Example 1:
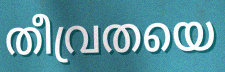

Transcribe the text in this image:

തീവ്രതയെ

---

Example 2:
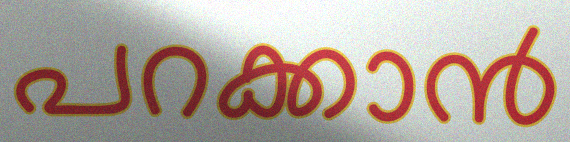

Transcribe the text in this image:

പറക്കാൻ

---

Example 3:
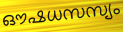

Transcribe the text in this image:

ഔഷധസസ്യം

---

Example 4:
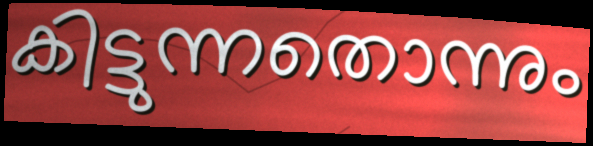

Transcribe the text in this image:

കിട്ടുന്നതൊന്നും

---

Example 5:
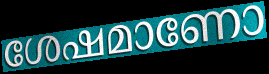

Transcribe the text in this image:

ശേഷമാണോ